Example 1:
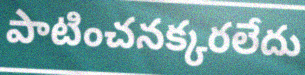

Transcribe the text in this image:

పాటించనక్కరలేదు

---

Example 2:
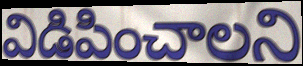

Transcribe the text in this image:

విడిపించాలని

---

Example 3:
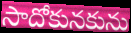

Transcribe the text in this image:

సాదోకునకును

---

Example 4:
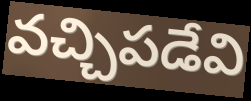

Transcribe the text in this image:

వచ్చిపడేవి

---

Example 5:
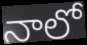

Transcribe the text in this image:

నాలో